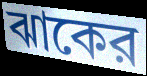
ঝাকের